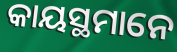
କାୟସ୍ଥମାନେ